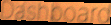
Dashboard